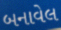
બનાવેલ